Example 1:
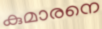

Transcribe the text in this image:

കുമാരനെ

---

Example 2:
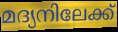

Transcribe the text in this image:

മദ്യനിലേക്ക്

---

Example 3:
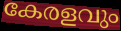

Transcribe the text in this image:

കേരളവും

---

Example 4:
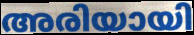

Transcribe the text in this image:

അരിയായി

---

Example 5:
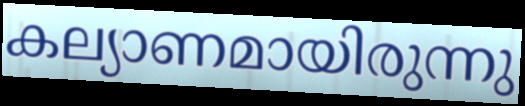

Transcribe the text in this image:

കല്യാണമായിരുന്നു